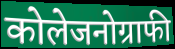
कोलेजनोग्राफी